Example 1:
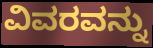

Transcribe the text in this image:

ವಿವರವನ್ನು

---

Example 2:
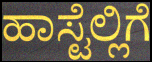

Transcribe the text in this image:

ಹಾಸ್ಟೆಲ್ಲಿಗೆ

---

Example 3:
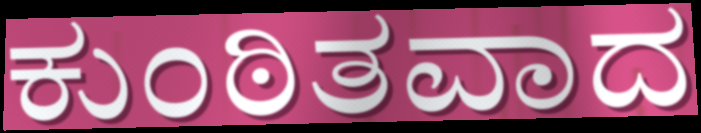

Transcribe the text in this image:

ಕುಂಠಿತವಾದ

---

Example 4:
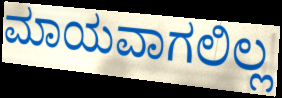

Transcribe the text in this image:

ಮಾಯವಾಗಲಿಲ್ಲ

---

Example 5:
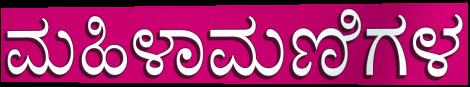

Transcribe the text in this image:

ಮಹಿಳಾಮಣಿಗಳ